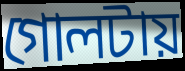
গোলটায়